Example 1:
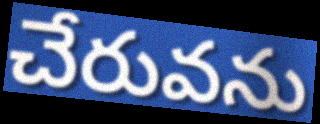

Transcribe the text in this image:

చేరువను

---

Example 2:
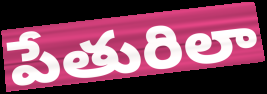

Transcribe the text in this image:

పేతురిలా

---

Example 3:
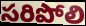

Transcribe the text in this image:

సరిపోలి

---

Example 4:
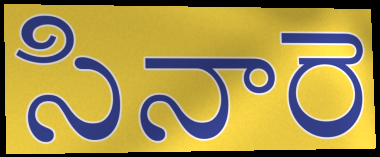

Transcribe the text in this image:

సినారె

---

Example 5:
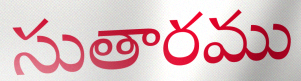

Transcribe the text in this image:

సుతారము